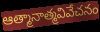
ఆత్మానాత్మవివేచనం